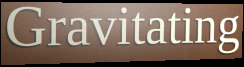
Gravitating